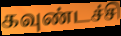
கவுண்டச்சி